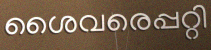
ശൈവരെപ്പറ്റി